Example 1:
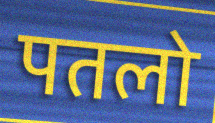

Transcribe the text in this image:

पतलो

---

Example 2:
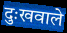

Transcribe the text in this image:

दुःखवाले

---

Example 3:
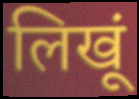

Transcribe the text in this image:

लिखूं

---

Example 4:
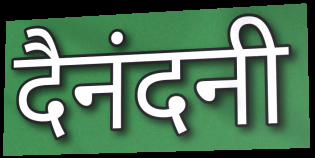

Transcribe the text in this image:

दैनंदनी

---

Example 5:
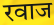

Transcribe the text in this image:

रवाज